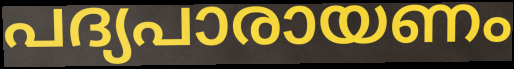
പദ്യപാരായണം